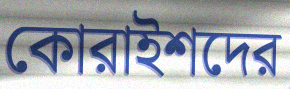
কোরাইশদের